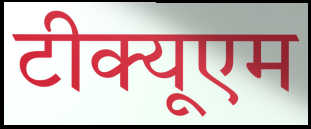
टीक्यूएम